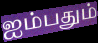
ஐம்பதும்